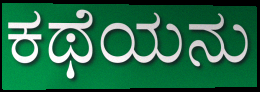
ಕಥೆಯನು